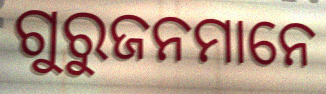
ଗୁରୁଜନମାନେ